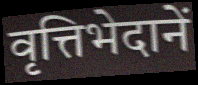
वृत्तिभेदानें